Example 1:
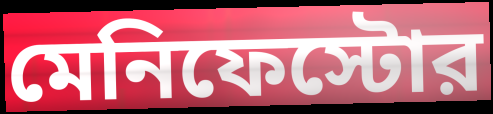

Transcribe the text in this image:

মেনিফেস্টোর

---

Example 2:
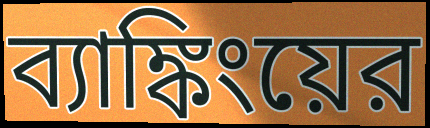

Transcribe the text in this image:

ব্যাঙ্কিংয়ের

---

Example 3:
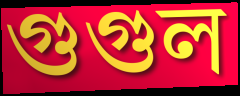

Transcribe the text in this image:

গুগুল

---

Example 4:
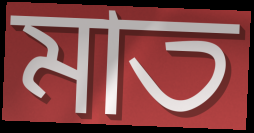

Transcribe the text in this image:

মাত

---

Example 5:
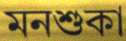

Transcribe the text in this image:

মনশুকা